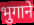
भुगाने